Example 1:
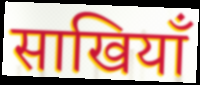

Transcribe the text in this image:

साखियाँ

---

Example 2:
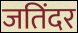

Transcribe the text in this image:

जतिंदर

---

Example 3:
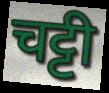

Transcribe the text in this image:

चट्टी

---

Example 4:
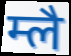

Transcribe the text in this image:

म्लै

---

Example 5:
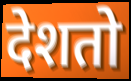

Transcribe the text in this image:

देशतो